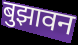
बुझावन